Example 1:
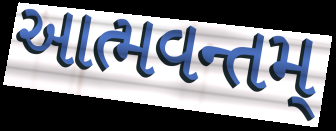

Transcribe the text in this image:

આત્મવન્તમ્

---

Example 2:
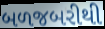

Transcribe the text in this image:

બળજબરીથી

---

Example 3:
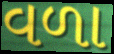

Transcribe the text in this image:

વળા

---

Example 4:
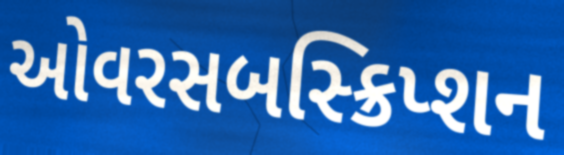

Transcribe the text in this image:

ઓવરસબસ્ક્રિપ્શન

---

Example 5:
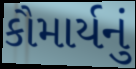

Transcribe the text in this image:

કૌમાર્યનું